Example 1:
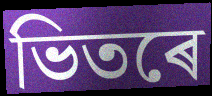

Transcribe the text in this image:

ভিতৰে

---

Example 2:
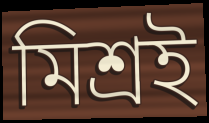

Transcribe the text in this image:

মিশ্ৰই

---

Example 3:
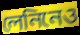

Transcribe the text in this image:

লেনিনেও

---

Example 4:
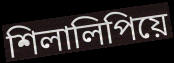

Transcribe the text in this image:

শিলালিপিয়ে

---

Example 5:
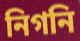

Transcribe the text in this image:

নিগনি